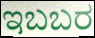
ಇಬಬರ